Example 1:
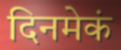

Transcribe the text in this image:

दिनमेकं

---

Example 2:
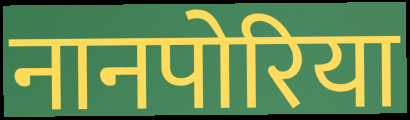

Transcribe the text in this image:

नानपोरिया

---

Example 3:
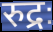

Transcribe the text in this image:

रुद्रः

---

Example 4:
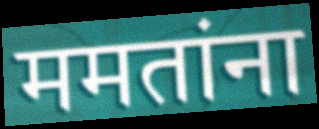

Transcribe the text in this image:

ममतांना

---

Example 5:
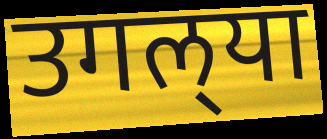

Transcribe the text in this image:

उगल्या